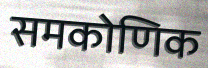
समकोणिक